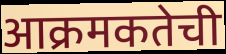
आक्रमकतेची